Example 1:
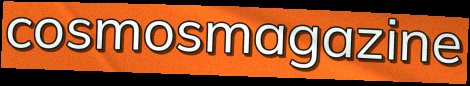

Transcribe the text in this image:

cosmosmagazine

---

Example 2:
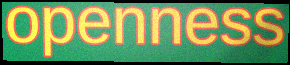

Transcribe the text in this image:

openness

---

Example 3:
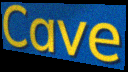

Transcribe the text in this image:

Cave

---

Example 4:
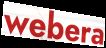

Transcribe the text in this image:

webera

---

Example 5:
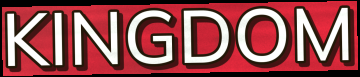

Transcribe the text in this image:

KINGDOM